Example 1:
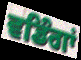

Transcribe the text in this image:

ਵਡਿੰਗਾਂ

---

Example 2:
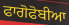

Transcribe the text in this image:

ਫਾਗੋਫੋਬੀਆ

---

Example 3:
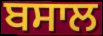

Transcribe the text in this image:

ਬਸਾਲ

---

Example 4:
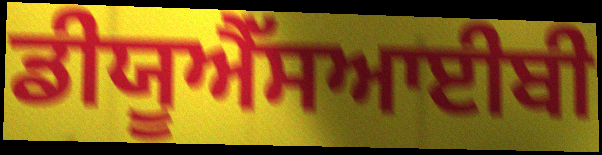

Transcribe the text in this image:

ਡੀਯੂਐੱਸਆਈਬੀ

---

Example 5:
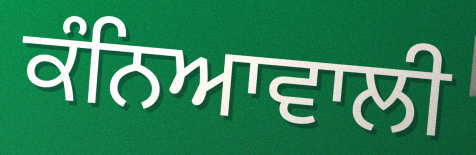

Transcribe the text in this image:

ਕੰਨਿਆਵਾਲੀ